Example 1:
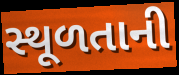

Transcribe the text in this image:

સ્થૂળતાની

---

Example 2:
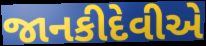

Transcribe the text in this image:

જાનકીદેવીએ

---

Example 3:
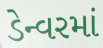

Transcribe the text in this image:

ડેન્વરમાં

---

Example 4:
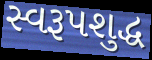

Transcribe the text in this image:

સ્વરૂપશુદ્ધ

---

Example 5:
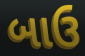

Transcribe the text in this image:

બાઉ